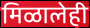
मिळालेही